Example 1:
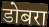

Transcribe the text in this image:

डोबरा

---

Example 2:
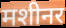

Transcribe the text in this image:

मशीनर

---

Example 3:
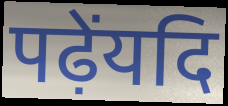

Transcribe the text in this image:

पढ़ेंयदि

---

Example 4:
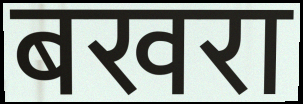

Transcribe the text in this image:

बखरा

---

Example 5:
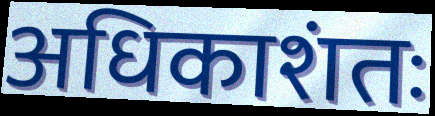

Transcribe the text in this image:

अधिकाशंतः